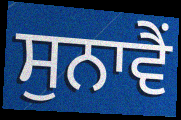
ਸੁਨਾਵੈਂ